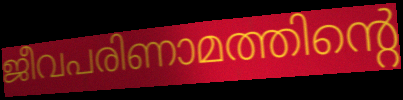
ജീവപരിണാമത്തിന്റെ